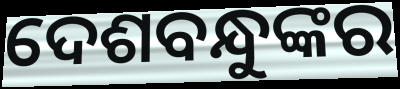
ଦେଶବନ୍ଧୁଙ୍କର